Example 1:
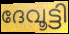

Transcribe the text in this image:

ദേവൂട്ടി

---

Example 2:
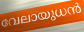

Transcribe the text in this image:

വേലായുധൻ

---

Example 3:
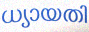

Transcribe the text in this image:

ധ്യായതി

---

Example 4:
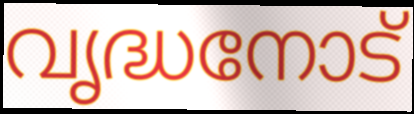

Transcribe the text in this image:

വൃദ്ധനോട്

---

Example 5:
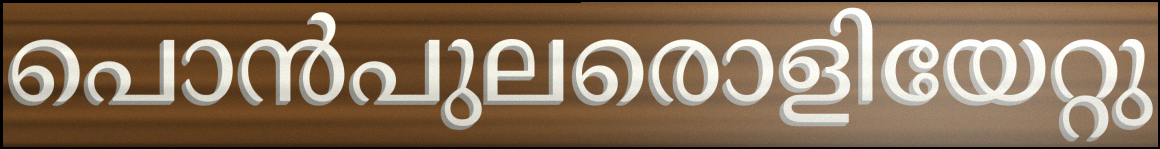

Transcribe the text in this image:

പൊൻപുലരൊളിയേറ്റു